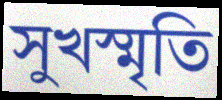
সুখস্মৃতি